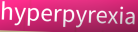
hyperpyrexia